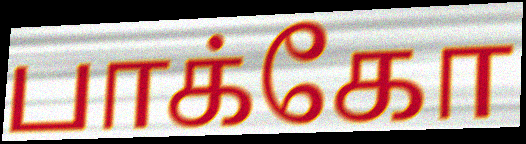
பாக்கோ